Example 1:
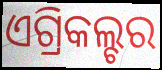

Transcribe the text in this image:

ଏଗ୍ରିକଲ୍ଚର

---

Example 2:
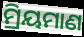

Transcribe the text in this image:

ମ୍ରିୟମାଣ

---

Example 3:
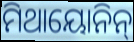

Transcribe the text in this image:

ମିଥାୟୋନିନ୍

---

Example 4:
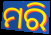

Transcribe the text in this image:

ମରି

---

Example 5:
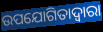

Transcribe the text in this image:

ଉପଯୋଗିତାଦ୍ୱାରା